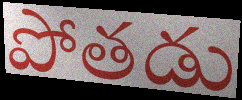
పోతడు